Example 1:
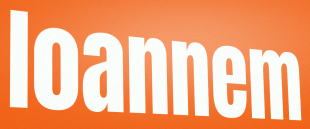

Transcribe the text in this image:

Ioannem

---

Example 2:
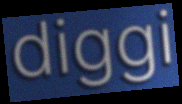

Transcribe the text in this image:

diggi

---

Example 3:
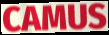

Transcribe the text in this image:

CAMUS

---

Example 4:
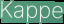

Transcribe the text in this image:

Kappe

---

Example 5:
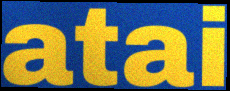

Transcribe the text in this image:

atai